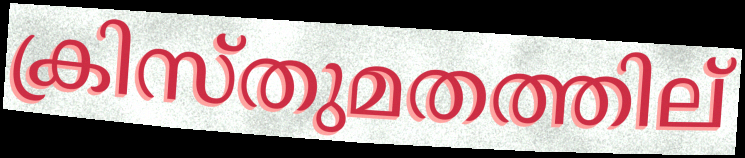
ക്രിസ്തുമതത്തില്